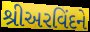
શ્રીઅરવિંદને